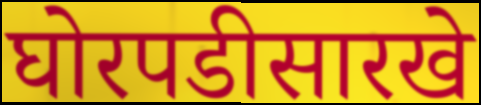
घोरपडीसारखे